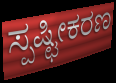
ಸ್ಪಷ್ಟೀಕರಣ